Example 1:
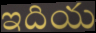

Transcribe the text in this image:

ఇదియ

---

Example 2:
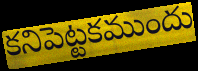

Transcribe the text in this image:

కనిపెట్టకముందు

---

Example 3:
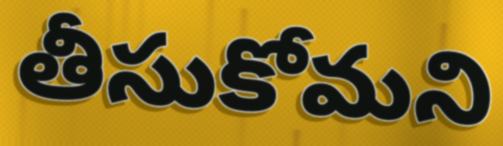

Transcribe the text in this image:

తీసుకోమని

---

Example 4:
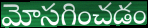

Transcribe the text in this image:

మోసగించడం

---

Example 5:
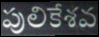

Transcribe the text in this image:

పులికేశవ